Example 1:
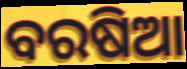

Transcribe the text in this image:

ବରଷିଆ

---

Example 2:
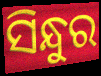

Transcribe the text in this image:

ସିନ୍ଧୁର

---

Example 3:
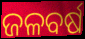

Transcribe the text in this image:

ଜଳବର୍ଷ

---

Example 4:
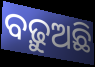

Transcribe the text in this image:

ବଢ଼ୁଅଛି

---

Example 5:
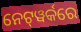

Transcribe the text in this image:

ନେଟ୍‍ୱର୍କରେ